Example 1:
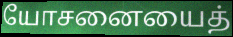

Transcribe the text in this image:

யோசனையைத்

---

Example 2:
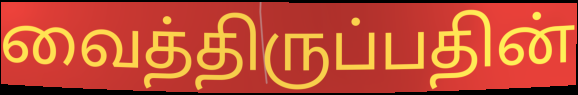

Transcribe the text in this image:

வைத்திருப்பதின்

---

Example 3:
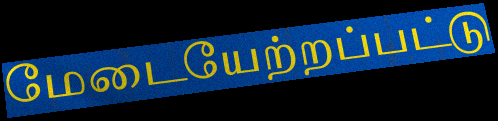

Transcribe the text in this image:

மேடையேற்றப்பட்டு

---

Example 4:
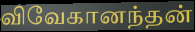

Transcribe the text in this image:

விவேகானந்தன்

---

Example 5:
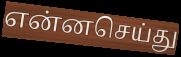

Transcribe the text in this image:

என்னசெய்து